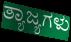
ತ್ಯಾಜ್ಯಗಳು